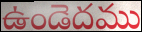
ఉండెదము